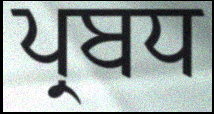
ਪ੍ਰਬਧ